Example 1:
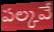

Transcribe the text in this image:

పల్కవే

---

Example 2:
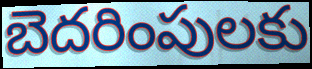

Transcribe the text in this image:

బెదరింపులకు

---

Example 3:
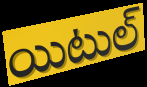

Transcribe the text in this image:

యిటుల్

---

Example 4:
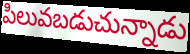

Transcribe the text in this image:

పిలువబడుచున్నాడు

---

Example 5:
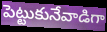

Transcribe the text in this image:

పెట్టుకునేవాడిగా